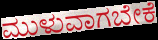
ಮುಳುವಾಗಬೇಕೆ